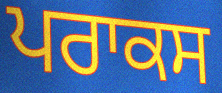
ਪਰਾਕਸ